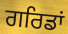
ਗਰਿਡਾਂ